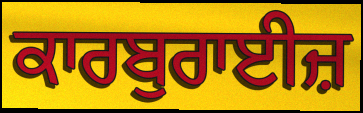
ਕਾਰਬੁਰਾਈਜ਼